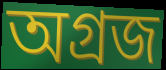
অগ্ৰজ